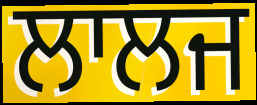
ਲਾਲਜ